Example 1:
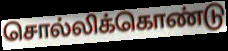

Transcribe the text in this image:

சொல்லிக்கொண்டு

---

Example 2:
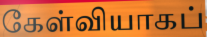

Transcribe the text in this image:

கேள்வியாகப்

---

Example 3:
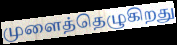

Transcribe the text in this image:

முளைத்தெழுகிறது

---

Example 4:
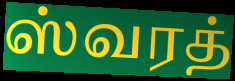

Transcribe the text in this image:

ஸ்வரத்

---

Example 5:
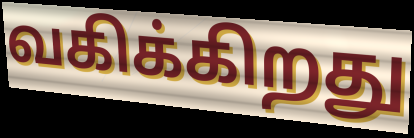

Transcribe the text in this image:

வகிக்கிறது